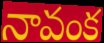
నావంక